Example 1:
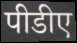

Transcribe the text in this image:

पीडीए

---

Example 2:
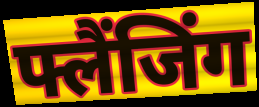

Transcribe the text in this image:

फ्लैंजिंग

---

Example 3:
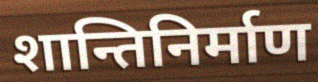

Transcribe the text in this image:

शान्तिनिर्माण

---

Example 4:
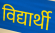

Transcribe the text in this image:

विद्यार्थी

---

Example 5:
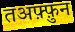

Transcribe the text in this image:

तअफ़्फ़ुन